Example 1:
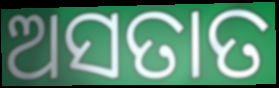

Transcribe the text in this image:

ଅସତାତ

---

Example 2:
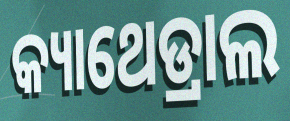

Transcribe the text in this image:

କ୍ୟାଥେଡ୍ରାଲ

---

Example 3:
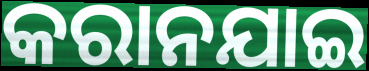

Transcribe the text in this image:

କରାନଯାଇ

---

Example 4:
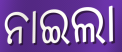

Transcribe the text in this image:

ନାଇଲା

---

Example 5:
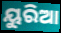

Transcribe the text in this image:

ୟୁରିଆ